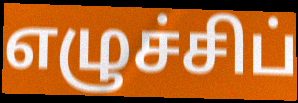
எழுச்சிப்